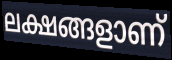
ലക്ഷങ്ങളാണ്